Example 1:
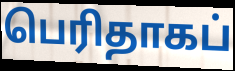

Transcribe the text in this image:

பெரிதாகப்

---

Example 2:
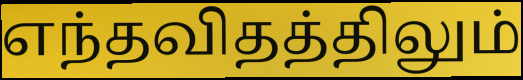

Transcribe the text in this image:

எந்தவிதத்திலும்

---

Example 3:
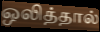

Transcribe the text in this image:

ஒலித்தால்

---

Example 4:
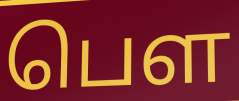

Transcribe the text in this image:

பெள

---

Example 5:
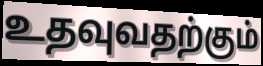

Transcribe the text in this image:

உதவுவதற்கும்